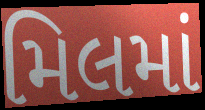
મિલમાં